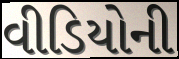
વીડિયોની